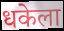
धकेला